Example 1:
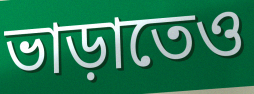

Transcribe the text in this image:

ভাড়াতেও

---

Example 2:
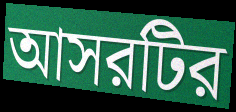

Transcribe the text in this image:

আসরটির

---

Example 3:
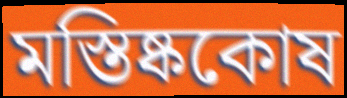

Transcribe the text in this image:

মস্তিষ্ককোষ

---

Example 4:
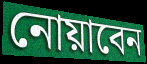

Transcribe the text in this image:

নোয়াবেন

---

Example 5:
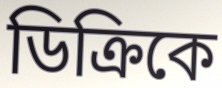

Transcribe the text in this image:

ডিক্রিকে